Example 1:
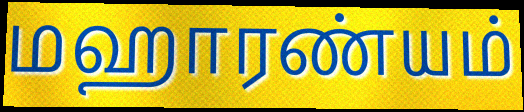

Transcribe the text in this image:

மஹாரண்யம்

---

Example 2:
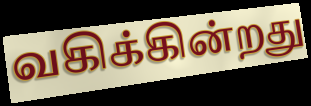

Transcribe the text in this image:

வகிக்கின்றது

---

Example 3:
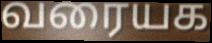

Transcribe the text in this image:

வரையக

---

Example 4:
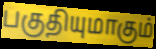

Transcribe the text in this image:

பகுதியுமாகும்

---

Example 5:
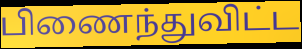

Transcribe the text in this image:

பிணைந்துவிட்ட